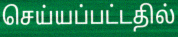
செய்யப்பட்டதில்